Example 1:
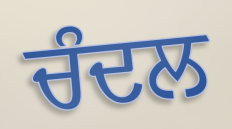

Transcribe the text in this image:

ਚੰਦਲ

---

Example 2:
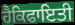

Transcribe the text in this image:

ਹੈਕਿਫਾਇਤੀ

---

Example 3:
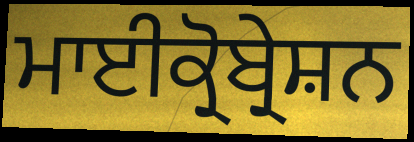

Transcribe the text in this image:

ਮਾਈਕ੍ਰੋਬ੍ਰੇਸ਼ਨ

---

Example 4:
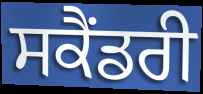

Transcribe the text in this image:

ਸਕੈੰਡਰੀ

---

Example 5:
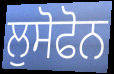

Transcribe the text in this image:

ਲੁਸੋਫੋਨ